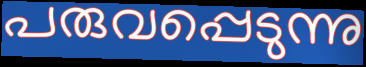
പരുവപ്പെടുന്നു